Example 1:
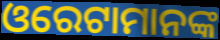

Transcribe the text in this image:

ଓରେଟାମାନଙ୍କ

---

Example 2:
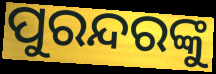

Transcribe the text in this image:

ପୁରନ୍ଦରଙ୍କୁ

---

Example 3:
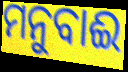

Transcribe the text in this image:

ମନୁବାଈ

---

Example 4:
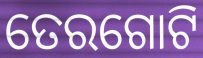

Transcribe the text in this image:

ତେରଗୋଟି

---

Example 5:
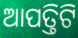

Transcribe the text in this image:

ଆପତ୍ତିଟି